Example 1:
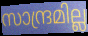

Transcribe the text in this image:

സാന്ദ്രമില്ല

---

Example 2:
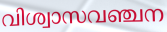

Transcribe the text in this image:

വിശ്വാസവഞ്ചന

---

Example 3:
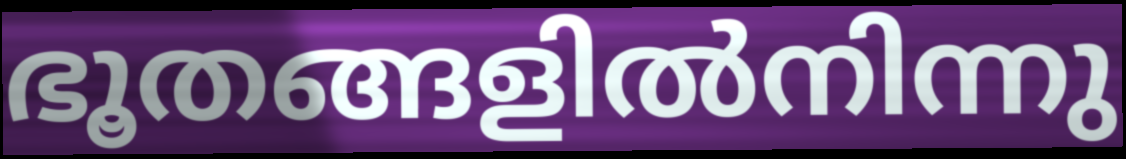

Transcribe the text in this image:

ഭൂതങ്ങളിൽനിന്നു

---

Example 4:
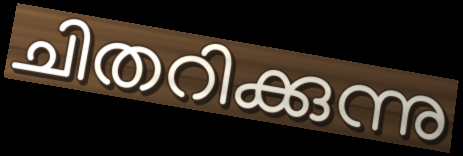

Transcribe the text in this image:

ചിതറിക്കുന്നു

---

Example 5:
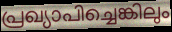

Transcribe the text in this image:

പ്രഖ്യാപിച്ചെങ്കിലും